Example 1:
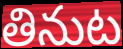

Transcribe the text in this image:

తినుట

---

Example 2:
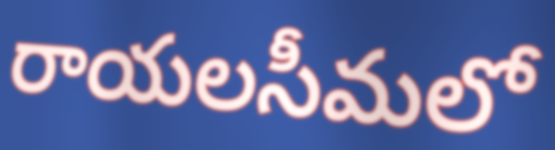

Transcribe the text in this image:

రాయలసీమలో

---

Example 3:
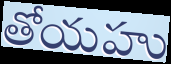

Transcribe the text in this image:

తోయహు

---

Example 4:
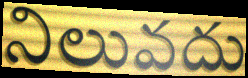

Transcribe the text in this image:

నిలువదు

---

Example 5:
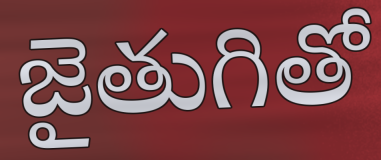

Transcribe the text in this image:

జైతుగితో